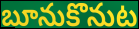
బూనుకొనుట